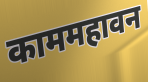
काममहावन